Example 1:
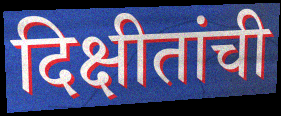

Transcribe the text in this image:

दिक्षीतांची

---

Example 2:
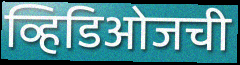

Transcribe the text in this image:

व्हिडिओजची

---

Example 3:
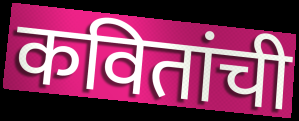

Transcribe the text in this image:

कवितांची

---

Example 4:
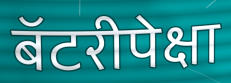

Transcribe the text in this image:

बॅटरीपेक्षा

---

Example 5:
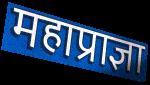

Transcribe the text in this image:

महाप्राज्ञा